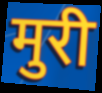
मुरी